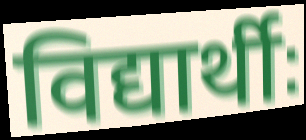
विद्यार्थीः